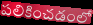
పలికించడంలో